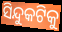
ସିନ୍ଦୁକଟିକୁ